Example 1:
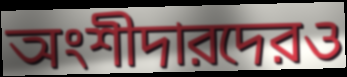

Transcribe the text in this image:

অংশীদারদেরও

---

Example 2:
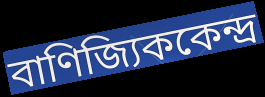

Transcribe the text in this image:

বাণিজ্যিককেন্দ্র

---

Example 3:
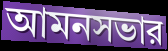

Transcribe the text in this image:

আমনসভার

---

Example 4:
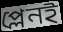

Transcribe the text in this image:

প্লেনই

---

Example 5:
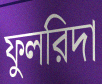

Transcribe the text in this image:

ফুলরিদা